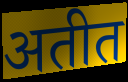
अतीत